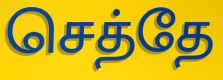
செத்தே